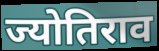
ज्योतिराव